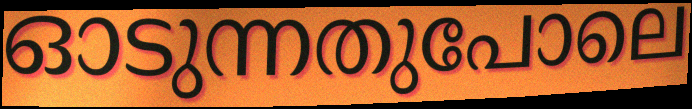
ഓടുന്നതുപോലെ